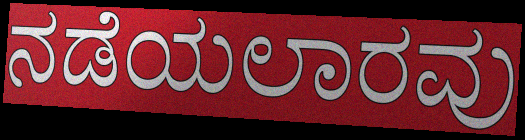
ನಡೆಯಲಾರವು